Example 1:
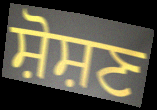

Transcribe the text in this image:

ਸ਼ੋਸ਼ਣ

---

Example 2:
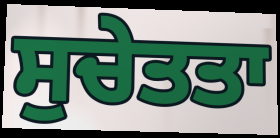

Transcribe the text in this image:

ਸੁਚੇਤਤਾ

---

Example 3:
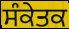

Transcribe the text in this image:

ਸੰਕੇਤਕ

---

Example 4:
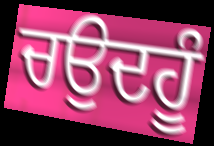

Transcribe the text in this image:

ਚਉਦਹੂੰ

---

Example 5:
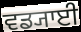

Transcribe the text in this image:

ਵਡ੍ਯਾਈ